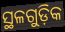
ସ୍ଥଳଗୁଡ଼ିକ